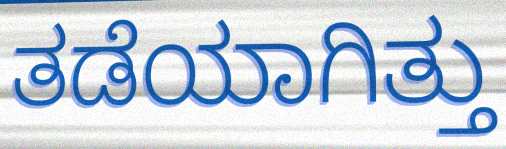
ತಡೆಯಾಗಿತ್ತು